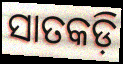
ସାତକଡ଼ି